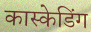
कास्केडिंग